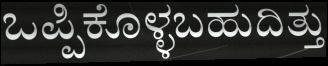
ಒಪ್ಪಿಕೊಳ್ಳಬಹುದಿತ್ತು